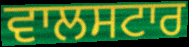
ਵਾਲਸਟਾਰ